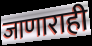
जाणाराही